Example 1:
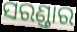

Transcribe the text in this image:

ସରଣ୍ଡାର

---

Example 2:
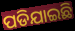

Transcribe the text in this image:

ପଡିଯାଇଛି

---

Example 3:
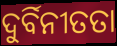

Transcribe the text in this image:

ଦୁର୍ବିନୀତତା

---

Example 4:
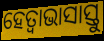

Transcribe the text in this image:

ହେତ୍ଵାଭାସାସ୍ତୁ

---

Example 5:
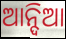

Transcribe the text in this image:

ଆନ୍ଦିଆ